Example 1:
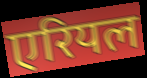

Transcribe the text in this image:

एरियल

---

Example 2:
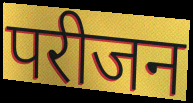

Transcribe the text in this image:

परीजन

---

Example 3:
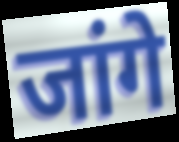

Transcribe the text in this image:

जांगे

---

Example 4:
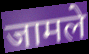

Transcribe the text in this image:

जामले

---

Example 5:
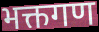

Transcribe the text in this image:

भक्तगण